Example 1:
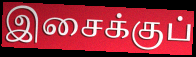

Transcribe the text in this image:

இசைக்குப்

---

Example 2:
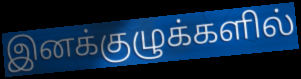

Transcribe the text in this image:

இனக்குழுக்களில்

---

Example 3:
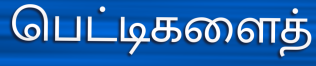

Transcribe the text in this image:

பெட்டிகளைத்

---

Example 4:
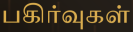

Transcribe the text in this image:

பகிர்வுகள்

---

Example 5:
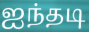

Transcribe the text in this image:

ஐந்தடி